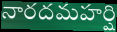
నారదమహర్షి